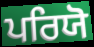
ਪਰਿਯੋ